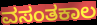
ವಸಂತಕಾಲ